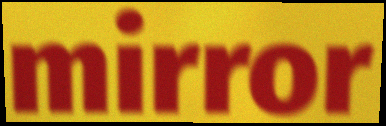
mirror